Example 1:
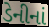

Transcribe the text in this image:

ડેનીનાં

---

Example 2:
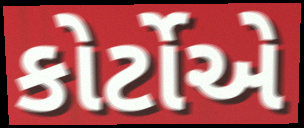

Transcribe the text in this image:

કોર્ટોએ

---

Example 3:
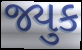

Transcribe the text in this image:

જ્યુક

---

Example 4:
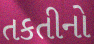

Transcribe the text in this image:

તકતીનો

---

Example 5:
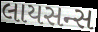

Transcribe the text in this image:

લાયસન્સ